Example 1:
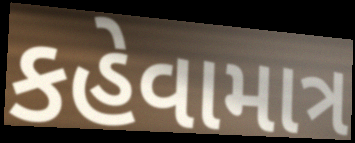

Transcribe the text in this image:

કહેવામાત્ર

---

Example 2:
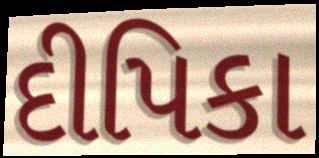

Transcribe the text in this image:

દીપિકા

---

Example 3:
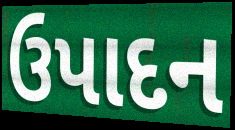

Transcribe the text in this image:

ઉપાદન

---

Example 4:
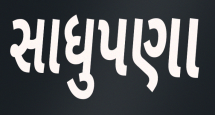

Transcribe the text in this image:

સાધુપણા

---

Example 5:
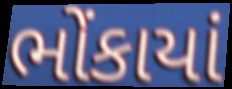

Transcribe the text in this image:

ભોંકાયાં